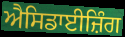
ਐਸਿਡਾਈਜ਼ਿੰਗ